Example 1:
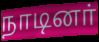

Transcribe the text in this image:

நாடினர்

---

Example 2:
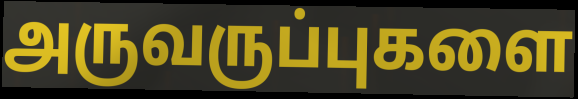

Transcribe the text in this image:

அருவருப்புகளை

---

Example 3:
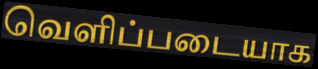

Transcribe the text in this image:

வெளிப்படையாக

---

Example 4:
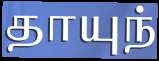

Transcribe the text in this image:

தாயுந்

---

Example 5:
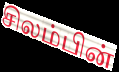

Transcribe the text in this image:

சிலம்பின்